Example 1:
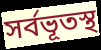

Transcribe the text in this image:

সর্বভূতস্থ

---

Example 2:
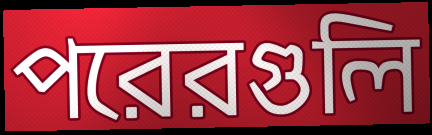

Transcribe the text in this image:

পরেরগুলি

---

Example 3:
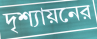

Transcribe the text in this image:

দৃশ্যায়নের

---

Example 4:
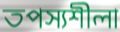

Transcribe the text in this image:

তপস্যশীলা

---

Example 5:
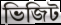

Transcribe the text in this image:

ভিজিট